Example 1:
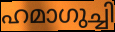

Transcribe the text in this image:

ഹമാഗുച്ചി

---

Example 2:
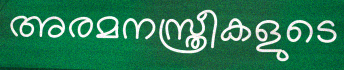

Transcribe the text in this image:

അരമനസ്ത്രീകളുടെ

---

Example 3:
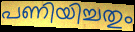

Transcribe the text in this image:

പണിയിച്ചതും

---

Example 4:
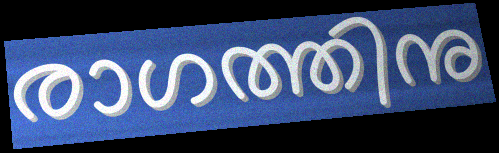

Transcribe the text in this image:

രാഗത്തിനു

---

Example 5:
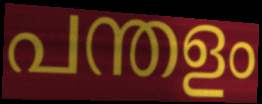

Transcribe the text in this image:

പന്തളം